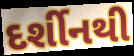
દર્શીનથી